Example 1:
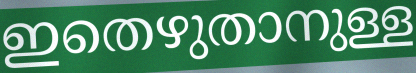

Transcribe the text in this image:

ഇതെഴുതാനുള്ള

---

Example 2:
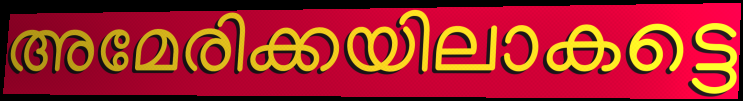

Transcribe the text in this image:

അമേരിക്കയിലാകട്ടെ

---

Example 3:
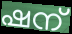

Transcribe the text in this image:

ഷന്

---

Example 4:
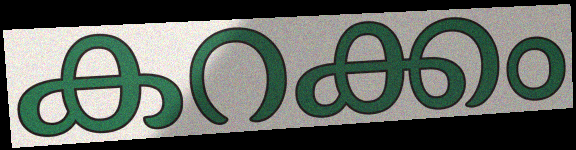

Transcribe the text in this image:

കറക്കം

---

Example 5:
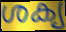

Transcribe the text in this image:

ശക്യ